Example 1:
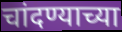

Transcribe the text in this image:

चांदण्याच्या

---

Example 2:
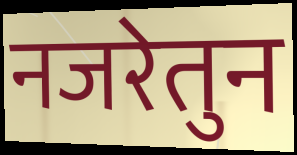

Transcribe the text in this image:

नजरेतुन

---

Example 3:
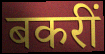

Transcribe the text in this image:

बकरीं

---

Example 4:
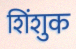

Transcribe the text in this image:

शिंशुक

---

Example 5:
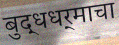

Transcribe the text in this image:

बुद्धधर्माचा